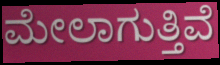
ಮೇಲಾಗುತ್ತಿವೆ